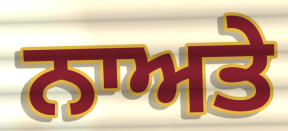
ਨਾਅਤੇ